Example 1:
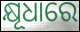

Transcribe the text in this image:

କ୍ଷୂଧାରେ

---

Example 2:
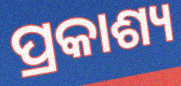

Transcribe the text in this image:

ପ୍ରକାଶ୍ୟ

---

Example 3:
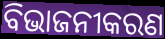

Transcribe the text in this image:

ବିଭାଜନୀକରଣ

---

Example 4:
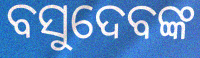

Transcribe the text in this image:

ବସୁଦେବଙ୍କ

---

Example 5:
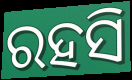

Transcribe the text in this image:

ରହସି